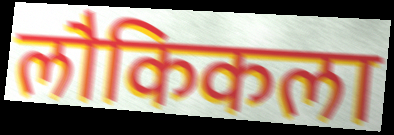
लौकिकला